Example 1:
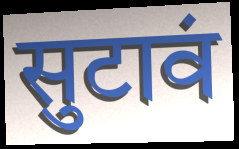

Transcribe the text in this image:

सुटावं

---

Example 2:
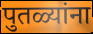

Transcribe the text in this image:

पुतळ्यांना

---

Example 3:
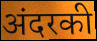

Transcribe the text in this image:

अंदरकी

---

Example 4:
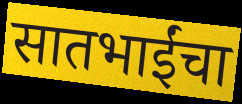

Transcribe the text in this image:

सातभाईंचा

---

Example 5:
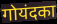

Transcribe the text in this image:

गोयंदका